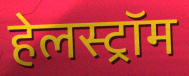
हेलस्ट्रॉम